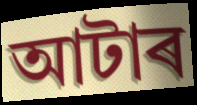
আটাৰ